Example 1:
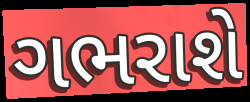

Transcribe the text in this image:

ગભરાશે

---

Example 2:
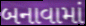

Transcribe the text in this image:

બનાવામાં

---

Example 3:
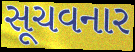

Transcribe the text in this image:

સૂચવનાર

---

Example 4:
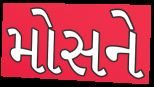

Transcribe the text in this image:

મોસને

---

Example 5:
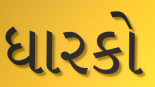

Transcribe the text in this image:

ધારકો